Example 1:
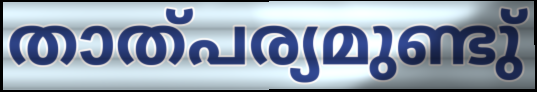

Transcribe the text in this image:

താത്പര്യമുണ്ടു്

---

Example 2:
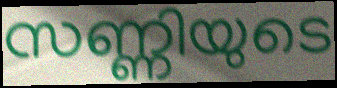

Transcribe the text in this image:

സണ്ണിയുടെ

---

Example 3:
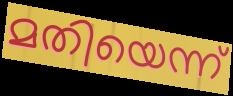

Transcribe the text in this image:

മതിയെന്ന്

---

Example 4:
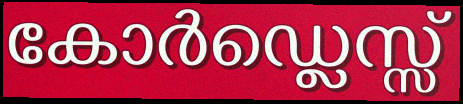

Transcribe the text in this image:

കോർഡ്ലെസ്സ്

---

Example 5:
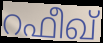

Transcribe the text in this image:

റഫീഖ്